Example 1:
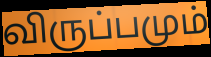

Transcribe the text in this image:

விருப்பமும்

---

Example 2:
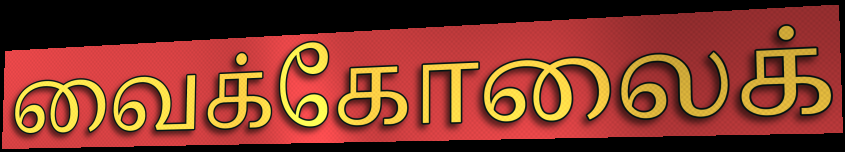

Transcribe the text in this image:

வைக்கோலைக்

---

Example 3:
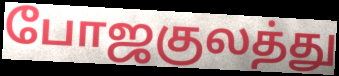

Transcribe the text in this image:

போஜகுலத்து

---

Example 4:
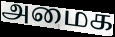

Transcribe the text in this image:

அமைக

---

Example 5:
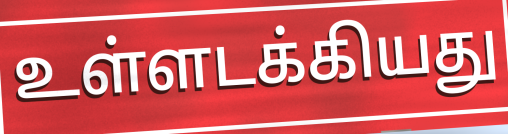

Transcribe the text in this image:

உள்ளடக்கியது